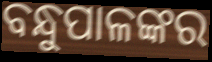
ବନ୍ଧୁପାଳଙ୍କର